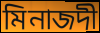
মিনাজদী